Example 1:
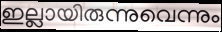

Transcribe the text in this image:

ഇല്ലായിരുന്നുവെന്നും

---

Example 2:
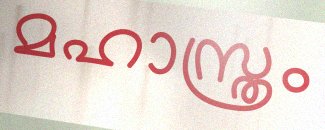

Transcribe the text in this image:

മഹാസ്ത്രം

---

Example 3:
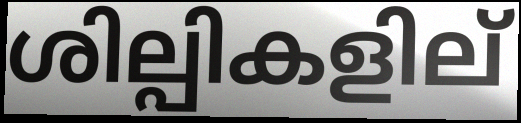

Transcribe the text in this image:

ശില്പികളില്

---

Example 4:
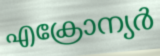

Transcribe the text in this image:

എക്രോന്യർ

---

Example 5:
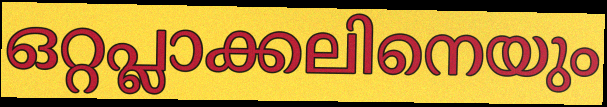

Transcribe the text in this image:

ഒറ്റപ്ലാക്കലിനെയും